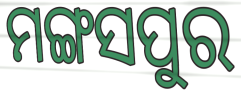
ମଙ୍ଗସପୁର